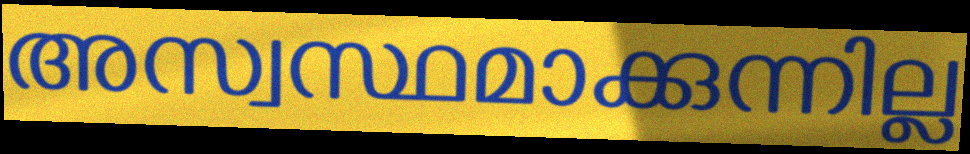
അസ്വസ്ഥമാക്കുന്നില്ല